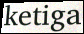
ketiga